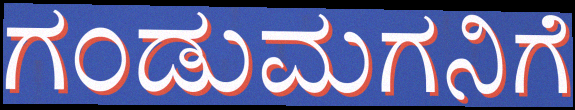
ಗಂಡುಮಗನಿಗೆ